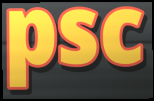
psc